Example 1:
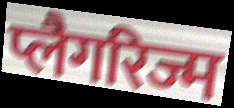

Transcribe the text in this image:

प्लैगरिज्म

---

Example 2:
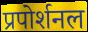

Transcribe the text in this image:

प्रपोर्शनल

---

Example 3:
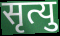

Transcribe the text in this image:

सृत्यु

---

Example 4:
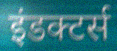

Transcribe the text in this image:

इंडक्टर्स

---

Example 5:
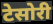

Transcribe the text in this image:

टेसोरी